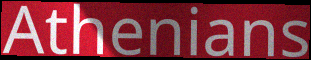
Athenians